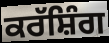
ਕਰੱਸ਼ਿੰਗ